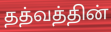
தத்வத்தின்